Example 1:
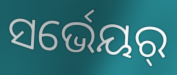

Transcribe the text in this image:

ସର୍ଭେୟର୍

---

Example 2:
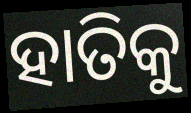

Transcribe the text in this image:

ହାତିକୁ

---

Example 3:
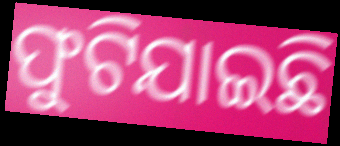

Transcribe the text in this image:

ଫୁଟିଯାଇଛି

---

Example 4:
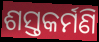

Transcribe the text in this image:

ଶସ୍ତକର୍ମଣି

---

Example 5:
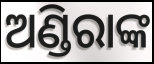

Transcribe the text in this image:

ଅଣ୍ଡିରାଙ୍କ